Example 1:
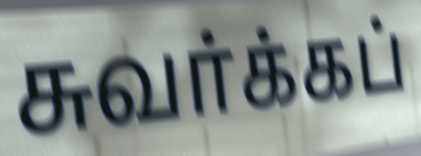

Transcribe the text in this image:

சுவர்க்கப்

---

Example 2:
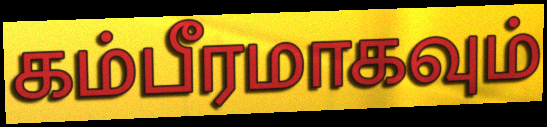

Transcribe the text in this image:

கம்பீரமாகவும்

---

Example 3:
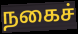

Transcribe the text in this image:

நகைச்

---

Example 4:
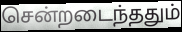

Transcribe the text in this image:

சென்றடைந்ததும்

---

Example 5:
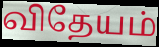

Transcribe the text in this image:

விதேயம்